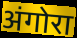
अंगोरा